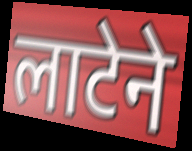
लाटेने